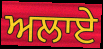
ਅਲਾਏ